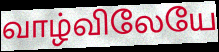
வாழ்விலேயே